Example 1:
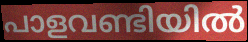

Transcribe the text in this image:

പാളവണ്ടിയിൽ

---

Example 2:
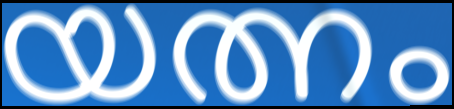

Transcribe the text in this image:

യത്നം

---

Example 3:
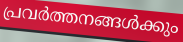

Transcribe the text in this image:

പ്രവർത്തനങ്ങൾക്കും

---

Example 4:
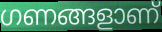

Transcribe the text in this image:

ഗണങ്ങളാണ്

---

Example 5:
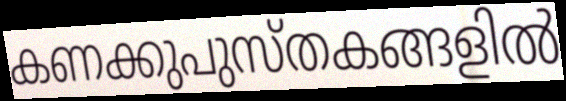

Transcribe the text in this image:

കണക്കുപുസ്തകങ്ങളിൽ